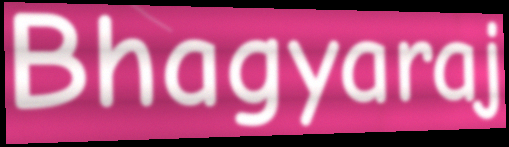
Bhagyaraj